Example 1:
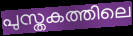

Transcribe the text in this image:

പുസ്തകത്തിലെ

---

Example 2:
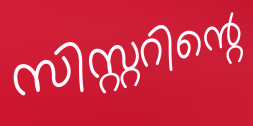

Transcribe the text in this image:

സിസ്റ്ററിന്റെ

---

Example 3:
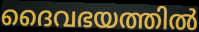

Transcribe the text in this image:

ദൈവഭയത്തിൽ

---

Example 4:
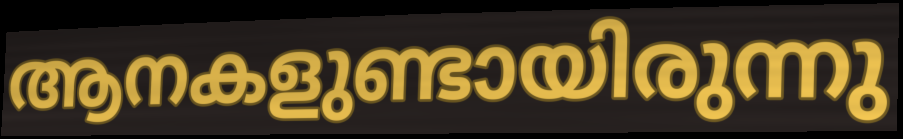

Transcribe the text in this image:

ആനകളുണ്ടായിരുന്നു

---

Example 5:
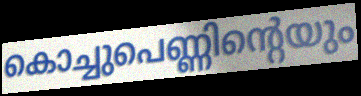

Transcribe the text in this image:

കൊച്ചുപെണ്ണിന്റെയും